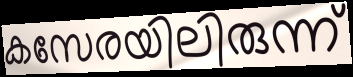
കസേരയിലിരുന്ന്